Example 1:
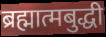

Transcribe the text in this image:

ब्रह्मात्मबुद्धी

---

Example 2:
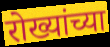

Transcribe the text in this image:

रोख्यांच्या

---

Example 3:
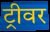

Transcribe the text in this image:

ट्रीवर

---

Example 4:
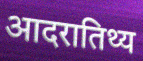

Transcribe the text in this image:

आदरातिथ्य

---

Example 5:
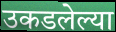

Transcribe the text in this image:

उकडलेल्या